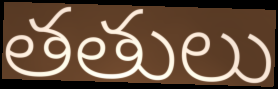
తతులు